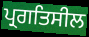
ਪ੍ਰਗਤਿਸੀਲ